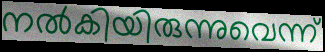
നൽകിയിരുന്നുവെന്ന്